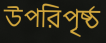
উপরিপৃষ্ঠ